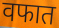
वफात